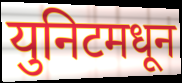
युनिटमधून